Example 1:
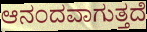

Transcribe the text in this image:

ಆನಂದವಾಗುತ್ತದೆ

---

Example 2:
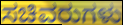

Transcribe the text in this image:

ಸಚಿವರುಗಳು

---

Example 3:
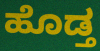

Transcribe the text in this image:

ಹೊಡ್ತ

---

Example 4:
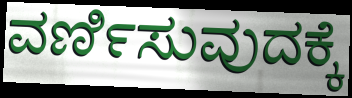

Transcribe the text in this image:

ವರ್ಣಿಸುವುದಕ್ಕೆ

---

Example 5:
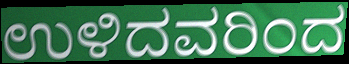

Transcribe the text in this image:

ಉಳಿದವರಿಂದ